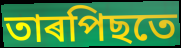
তাৰপিছতে